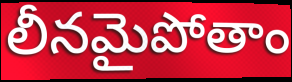
లీనమైపోతాం